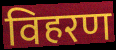
विहरण